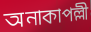
অনাকাপল্লী